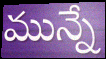
మున్నే